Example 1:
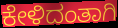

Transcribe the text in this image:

ಕೇಳಿದಂತಾಗಿ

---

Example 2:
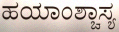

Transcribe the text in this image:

ಹಯಾಂಶ್ಚಾಸ್ಯ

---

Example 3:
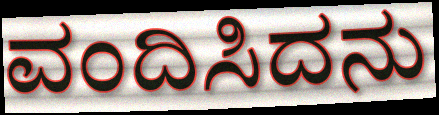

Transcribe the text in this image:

ವಂದಿಸಿದನು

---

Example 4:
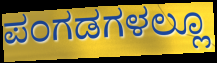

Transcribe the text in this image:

ಪಂಗಡಗಳಲ್ಲೂ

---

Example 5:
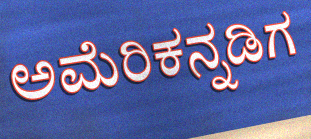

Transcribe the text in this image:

ಅಮೆರಿಕನ್ನಡಿಗ